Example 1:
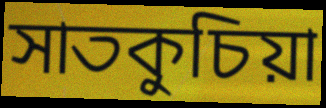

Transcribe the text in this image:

সাতকুচিয়া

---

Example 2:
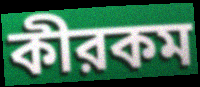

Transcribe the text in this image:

কীরকম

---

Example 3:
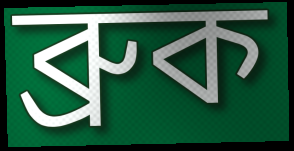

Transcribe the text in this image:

ব্রুক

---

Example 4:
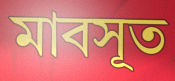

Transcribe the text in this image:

মাবসূত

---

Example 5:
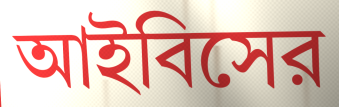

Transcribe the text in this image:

আইবিসের